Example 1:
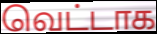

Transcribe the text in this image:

வெட்டாக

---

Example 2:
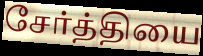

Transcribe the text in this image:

சேர்த்தியை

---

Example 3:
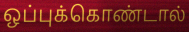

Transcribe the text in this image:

ஒப்புக்கொண்டால்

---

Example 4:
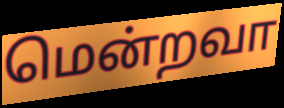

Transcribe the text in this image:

மென்றவா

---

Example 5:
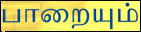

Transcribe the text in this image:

பாறையும்